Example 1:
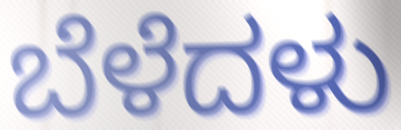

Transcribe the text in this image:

ಬೆಳೆದಳು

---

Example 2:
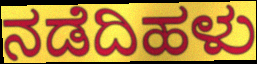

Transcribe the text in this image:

ನಡೆದಿಹಳು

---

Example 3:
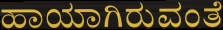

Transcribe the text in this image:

ಹಾಯಾಗಿರುವಂತೆ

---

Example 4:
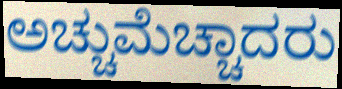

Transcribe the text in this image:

ಅಚ್ಚುಮೆಚ್ಚಾದರು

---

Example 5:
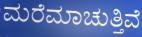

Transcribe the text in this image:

ಮರೆಮಾಚುತ್ತಿವೆ